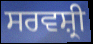
ਸਰਵਸ਼੍ਰੀ